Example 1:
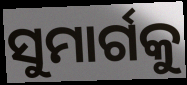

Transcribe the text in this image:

ସୁମାର୍ଗକୁ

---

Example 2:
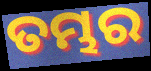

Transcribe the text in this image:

ତମ୍ଭର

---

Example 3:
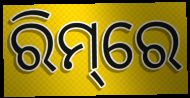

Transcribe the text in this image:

ରିମ୍‌ରେ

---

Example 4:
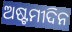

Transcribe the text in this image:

ଅଷ୍ଟମୀଦିନ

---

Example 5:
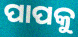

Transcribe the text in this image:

ପାପକୁ